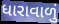
ધારાવાળું